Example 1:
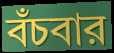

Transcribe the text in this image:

বঁচবার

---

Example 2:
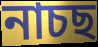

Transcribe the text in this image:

নাচছ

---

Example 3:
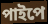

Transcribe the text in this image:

পাইপে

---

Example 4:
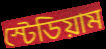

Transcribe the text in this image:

স্টেডিয়াম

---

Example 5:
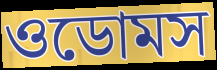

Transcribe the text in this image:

ওডোমস